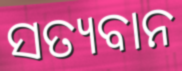
ସତ୍ୟବାନ